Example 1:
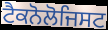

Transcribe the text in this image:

ਟੈਕਨੋਲੋਜਿਸਟ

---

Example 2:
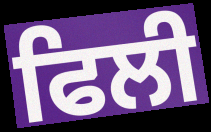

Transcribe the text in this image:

ਫਿਲੀ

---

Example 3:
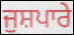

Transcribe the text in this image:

ਜੁਸ਼ਪਾਰੇ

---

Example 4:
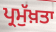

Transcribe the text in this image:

ਪ੍ਰਮੁੱਖ਼ਤਾ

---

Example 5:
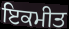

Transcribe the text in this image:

ਇਕਮੀਤ